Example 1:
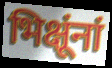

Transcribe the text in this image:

भिक्षूंनां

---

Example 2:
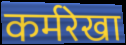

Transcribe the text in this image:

कर्मरेखा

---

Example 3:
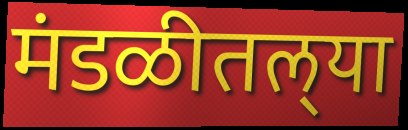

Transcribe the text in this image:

मंडळीतल्या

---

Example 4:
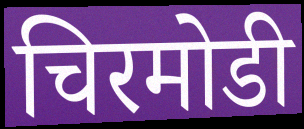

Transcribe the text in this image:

चिरमोडी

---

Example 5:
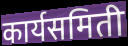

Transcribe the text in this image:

कार्यसमिती